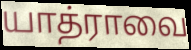
யாத்ராவை